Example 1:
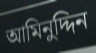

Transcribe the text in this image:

আমিনুদ্দিন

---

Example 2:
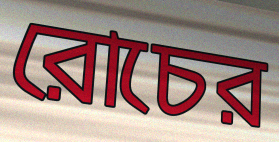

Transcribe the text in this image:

রোচের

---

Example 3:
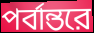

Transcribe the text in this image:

পর্বান্তরে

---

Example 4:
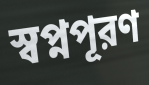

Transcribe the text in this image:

স্বপ্নপূরণ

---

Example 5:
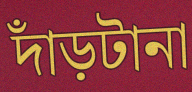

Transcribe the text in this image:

দাঁড়টানা